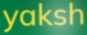
yaksh